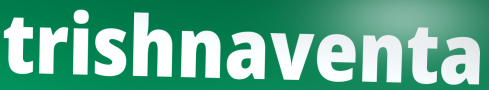
trishnaventa